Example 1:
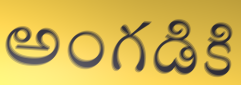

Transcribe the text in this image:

అంగడికి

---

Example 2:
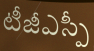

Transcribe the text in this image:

టీజీఎస్పీ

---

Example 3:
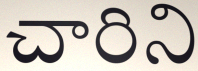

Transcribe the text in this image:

చారిని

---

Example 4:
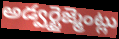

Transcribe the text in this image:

అడ్వర్టైజ్మెంట్లు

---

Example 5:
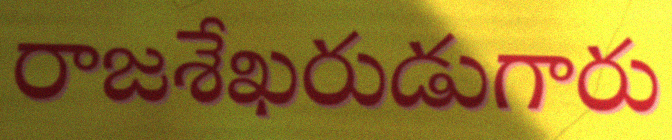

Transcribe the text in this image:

రాజశేఖరుడుగారు